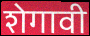
शेगावी